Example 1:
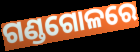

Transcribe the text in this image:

ଗଣ୍ଡଗୋଳରେ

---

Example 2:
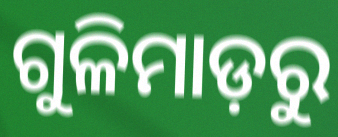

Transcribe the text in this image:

ଗୁଳିମାଡ଼ରୁ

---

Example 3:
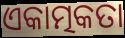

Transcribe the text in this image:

ଏକାତ୍ମକତା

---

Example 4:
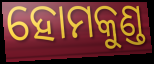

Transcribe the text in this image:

ହୋମକୁଣ୍ଡ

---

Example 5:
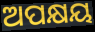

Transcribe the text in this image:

ଅପକ୍ଷୟ